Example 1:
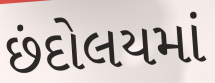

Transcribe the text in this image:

છંદોલયમાં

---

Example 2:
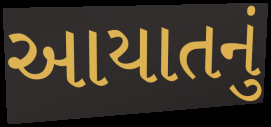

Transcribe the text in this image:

આયાતનું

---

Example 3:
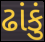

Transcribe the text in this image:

ઢાંકું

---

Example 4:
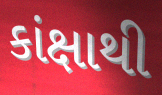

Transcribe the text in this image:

કાંક્ષાથી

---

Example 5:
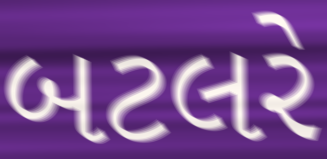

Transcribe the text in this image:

બટલરે